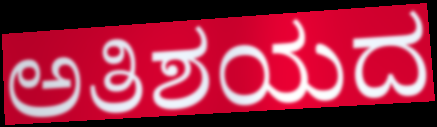
ಅತಿಶಯದ